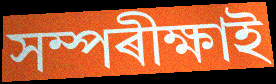
সম্পৰীক্ষাই